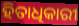
ହିତାଧିକାରୀ